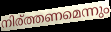
നിര്ത്തണമെന്നും